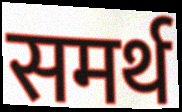
समर्थ